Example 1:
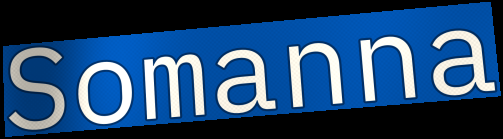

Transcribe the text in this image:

Somanna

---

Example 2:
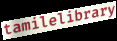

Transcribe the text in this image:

tamilelibrary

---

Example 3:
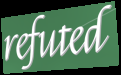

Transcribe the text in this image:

refuted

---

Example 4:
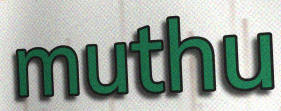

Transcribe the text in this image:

muthu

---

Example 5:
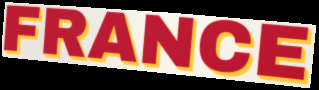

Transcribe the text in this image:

FRANCE